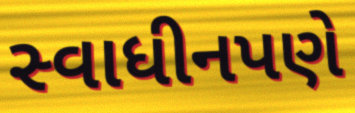
સ્વાધીનપણે